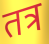
तत्र